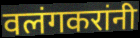
वलंगकरांनी